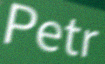
Petr